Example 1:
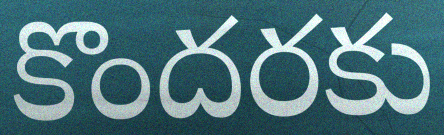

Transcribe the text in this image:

కొందరకు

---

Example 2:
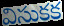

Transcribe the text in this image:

విసుకక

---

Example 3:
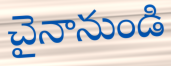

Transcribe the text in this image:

చైనానుండి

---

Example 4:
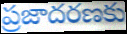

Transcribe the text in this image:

ప్రజాదరణకు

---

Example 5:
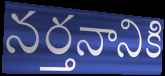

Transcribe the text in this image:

నర్తనానికి